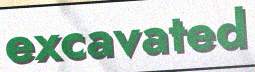
excavated